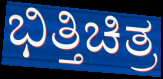
ಭಿತ್ತಿಚಿತ್ರ